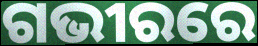
ଗଭୀରରେ